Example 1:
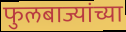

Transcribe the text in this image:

फुलबाज्यांच्या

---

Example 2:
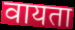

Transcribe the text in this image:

वायता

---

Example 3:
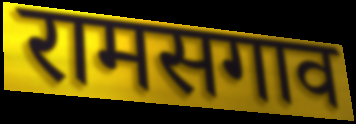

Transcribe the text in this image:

रामसगाव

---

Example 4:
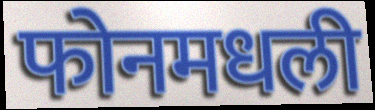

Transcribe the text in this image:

फोनमधली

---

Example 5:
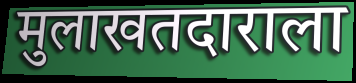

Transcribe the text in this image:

मुलाखतदाराला